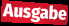
Ausgabe